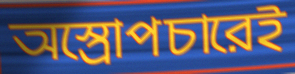
অস্ত্রোপচারেই